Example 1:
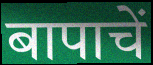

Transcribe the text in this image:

बापाचें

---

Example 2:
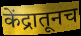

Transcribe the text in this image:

केंद्रातूनच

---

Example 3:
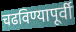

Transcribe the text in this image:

चढविण्यापूर्वी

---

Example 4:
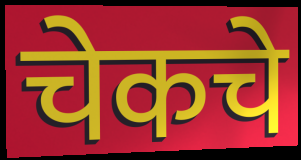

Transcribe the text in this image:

चेकचे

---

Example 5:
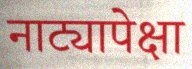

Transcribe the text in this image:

नाट्यापेक्षा